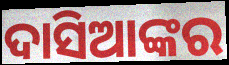
ଦାସିଆଙ୍କର